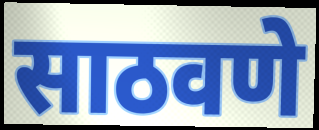
साठवणे